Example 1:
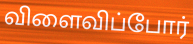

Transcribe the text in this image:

விளைவிப்போர்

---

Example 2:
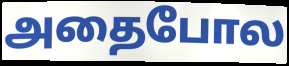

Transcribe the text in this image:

அதைபோல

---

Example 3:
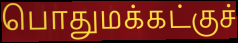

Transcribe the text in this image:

பொதுமக்கட்குச்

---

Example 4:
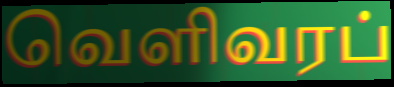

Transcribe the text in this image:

வெளிவரப்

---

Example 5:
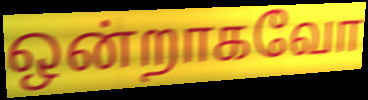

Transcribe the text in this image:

ஒன்றாகவோ